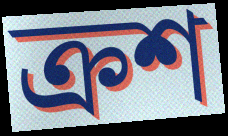
ক্রশ